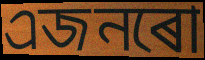
এজনৰো